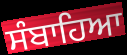
ਸੰਬਾਹਿਆ